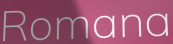
Romana